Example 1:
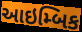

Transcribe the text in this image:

આઇમ્બિક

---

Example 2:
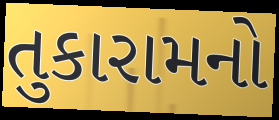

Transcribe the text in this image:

તુકારામનો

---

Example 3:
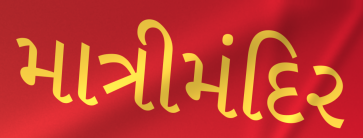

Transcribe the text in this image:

માત્રીમંદિર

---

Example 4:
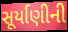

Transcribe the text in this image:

સૂર્યાણીની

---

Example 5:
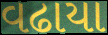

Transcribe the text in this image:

વઢાયા